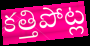
కత్తిపోట్ల